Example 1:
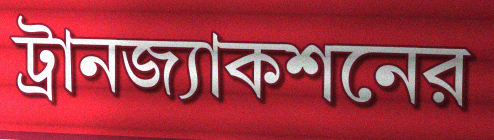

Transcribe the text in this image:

ট্রানজ্যাকশনের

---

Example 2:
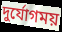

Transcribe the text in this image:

দুর্যোগময়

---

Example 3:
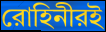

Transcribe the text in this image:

রোহিনীরই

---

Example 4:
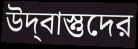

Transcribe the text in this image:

উদ্‌বাস্তুদের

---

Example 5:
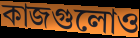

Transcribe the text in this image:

কাজগুলোও